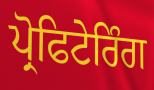
ਪ੍ਰੋਫਿਟੇਰਿੰਗ